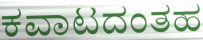
ಕವಾಟದಂತಹ